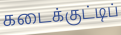
கடைக்குட்டிப்